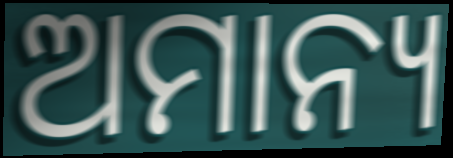
ଅମାନ୍ୟ